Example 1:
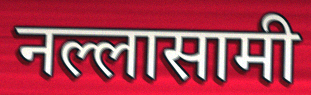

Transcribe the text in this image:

नल्लासामी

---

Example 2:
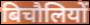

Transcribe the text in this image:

बिचौलियों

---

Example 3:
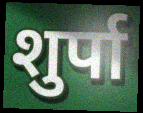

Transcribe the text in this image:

शुर्पा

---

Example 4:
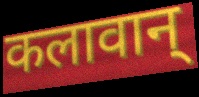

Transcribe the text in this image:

कलावान्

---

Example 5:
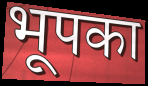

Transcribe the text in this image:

भूपका